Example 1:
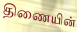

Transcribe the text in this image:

திணையின்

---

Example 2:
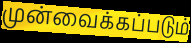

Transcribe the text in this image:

முன்வைக்கப்படும்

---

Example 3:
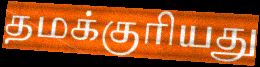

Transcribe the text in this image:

தமக்குரியது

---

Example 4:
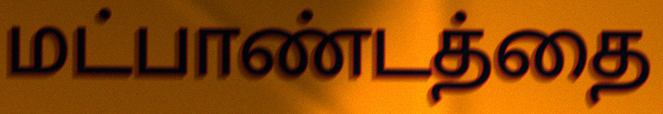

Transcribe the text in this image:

மட்பாண்டத்தை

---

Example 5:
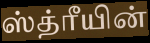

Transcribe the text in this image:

ஸ்த்ரீயின்